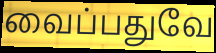
வைப்பதுவே